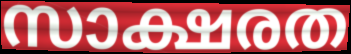
സാക്ഷരത